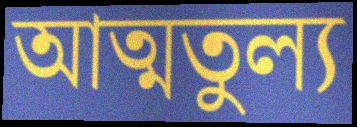
আত্মতুল্য